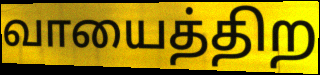
வாயைத்திற